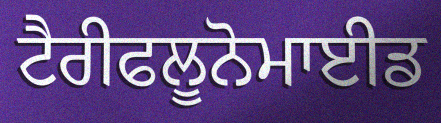
ਟੈਰੀਫਲੂਨੋਮਾਈਡ